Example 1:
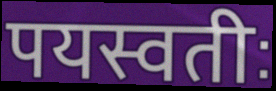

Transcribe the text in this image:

पयस्वतीः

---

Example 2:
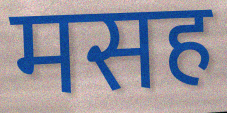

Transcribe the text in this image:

मसह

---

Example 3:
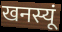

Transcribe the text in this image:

खनस्यूं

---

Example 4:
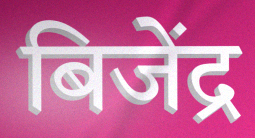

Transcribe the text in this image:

बिजेंद्र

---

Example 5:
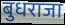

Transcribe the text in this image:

बुधराजा